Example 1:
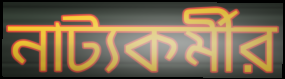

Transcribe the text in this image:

নাট্যকর্মীর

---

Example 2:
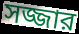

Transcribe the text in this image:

সজ্জার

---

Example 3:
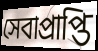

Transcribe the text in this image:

সেবাপ্রাপ্তি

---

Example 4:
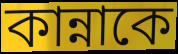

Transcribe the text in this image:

কান্নাকে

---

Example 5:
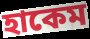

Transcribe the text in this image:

হাকেম